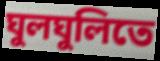
ঘুলঘুলিতে